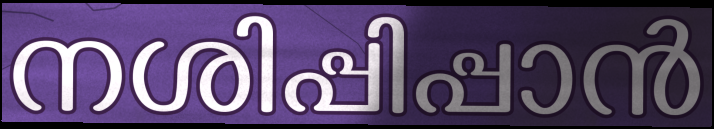
നശിപ്പിപ്പാൻ